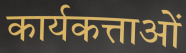
कार्यकत्ताओं